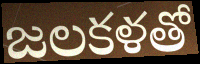
జలకళతో